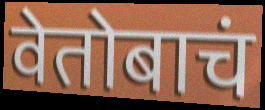
वेतोबाचं